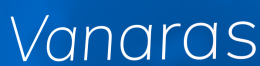
Vanaras